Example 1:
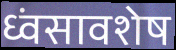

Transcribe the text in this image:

ध्वंसावशेष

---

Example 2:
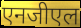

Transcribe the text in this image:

एनजीएल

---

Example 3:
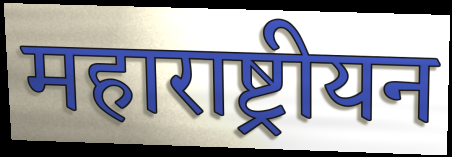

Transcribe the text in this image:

महाराष्ट्रीयन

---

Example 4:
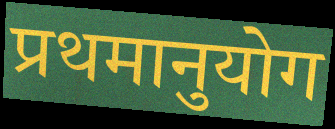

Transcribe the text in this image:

प्रथमानुयोग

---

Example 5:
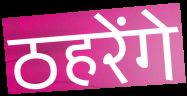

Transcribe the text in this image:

ठहरेंगे